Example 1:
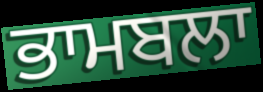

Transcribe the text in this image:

ਭਾਮਬਲਾ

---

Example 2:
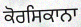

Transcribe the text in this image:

ਕੋਰਸਿਕਾਨਾ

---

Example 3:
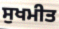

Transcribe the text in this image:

ਸੁਖਮੀਤ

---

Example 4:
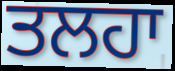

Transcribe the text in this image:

ਤਲਹਾ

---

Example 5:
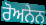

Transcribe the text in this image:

ਰੋਅਨੇਨ